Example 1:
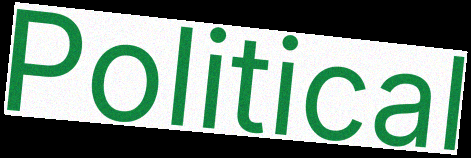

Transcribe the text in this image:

Political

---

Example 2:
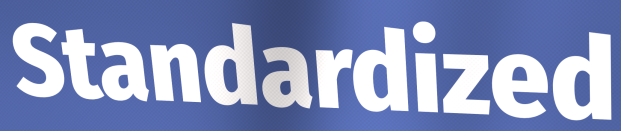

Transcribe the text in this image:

Standardized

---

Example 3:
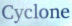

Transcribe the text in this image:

Cyclone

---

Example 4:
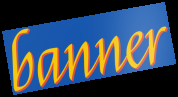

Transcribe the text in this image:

banner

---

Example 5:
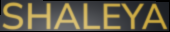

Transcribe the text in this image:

SHALEYA